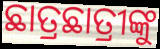
ଛାତ୍ରଛାତ୍ରୀଙ୍କୁ